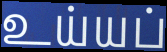
உய்யப்